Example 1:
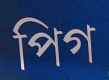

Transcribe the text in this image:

পিগ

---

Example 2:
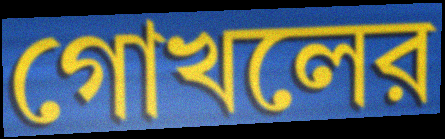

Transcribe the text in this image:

গোখলের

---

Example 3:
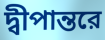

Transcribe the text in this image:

দ্বীপান্তরে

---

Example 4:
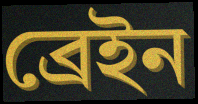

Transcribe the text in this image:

ব্রেইন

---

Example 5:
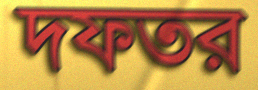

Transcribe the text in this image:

দফতর